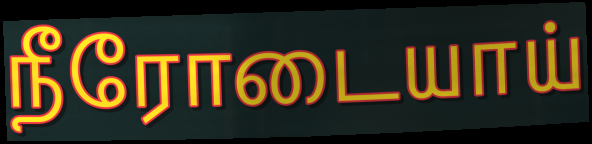
நீரோடையாய்